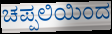
ಚಪ್ಪಲಿಯಿಂದ